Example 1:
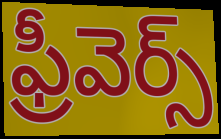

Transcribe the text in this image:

ఫ్రీవెర్స్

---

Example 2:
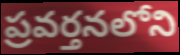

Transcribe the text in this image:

ప్రవర్తనలోని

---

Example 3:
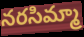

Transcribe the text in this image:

నరసిమ్మా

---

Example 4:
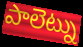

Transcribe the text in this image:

పాలెట్ను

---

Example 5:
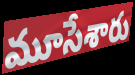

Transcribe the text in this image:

మూసేశారు